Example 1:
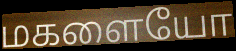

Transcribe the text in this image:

மகளையோ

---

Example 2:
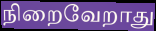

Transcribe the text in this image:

நிறைவேறாது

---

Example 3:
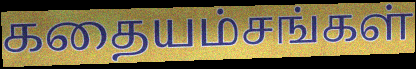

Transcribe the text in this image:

கதையம்சங்கள்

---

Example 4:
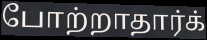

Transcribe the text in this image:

போற்றாதார்க்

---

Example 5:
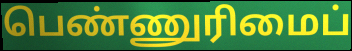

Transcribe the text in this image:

பெண்ணுரிமைப்